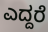
ಎದ್ದರೆ